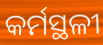
କର୍ମସ୍ଥଳୀ